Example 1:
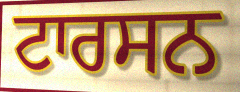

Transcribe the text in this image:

ਟਾਰਸਨ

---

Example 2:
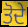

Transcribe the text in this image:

ਤੋਦੇ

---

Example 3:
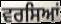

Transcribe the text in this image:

ਵਰਸਿਆਂ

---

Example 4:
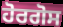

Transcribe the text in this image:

ਹੋਰਗੋਸ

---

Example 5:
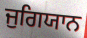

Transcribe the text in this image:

ਜੁਗਿਯਾਨ